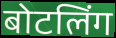
बोटलिंग